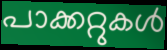
പാക്കറ്റുകൾ